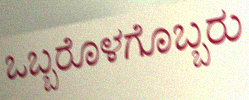
ಒಬ್ಬರೊಳಗೊಬ್ಬರು